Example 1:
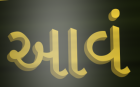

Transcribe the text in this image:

આવં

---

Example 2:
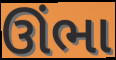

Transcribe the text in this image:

ઊંભા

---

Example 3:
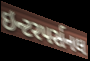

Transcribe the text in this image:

ઇન્ટરપર્સનલ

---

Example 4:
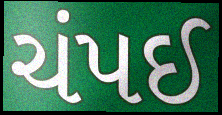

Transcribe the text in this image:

ચંપઈ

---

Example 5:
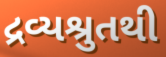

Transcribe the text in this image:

દ્રવ્યશ્રુતથી